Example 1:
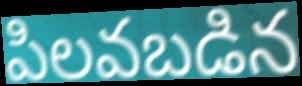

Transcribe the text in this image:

పిలవబడిన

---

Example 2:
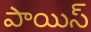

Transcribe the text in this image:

పాయిస్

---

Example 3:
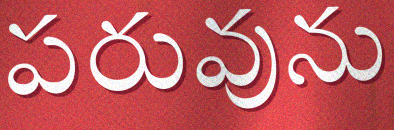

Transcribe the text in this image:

పరువును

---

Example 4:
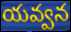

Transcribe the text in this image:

యవ్వన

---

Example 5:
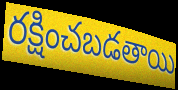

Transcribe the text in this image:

రక్షించబడతాయి